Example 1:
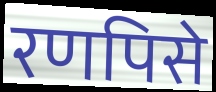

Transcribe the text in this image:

रणपिसे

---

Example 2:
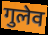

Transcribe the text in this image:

गुलेव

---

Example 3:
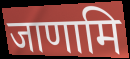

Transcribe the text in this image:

जाणामि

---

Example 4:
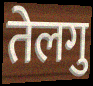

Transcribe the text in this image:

तेलगु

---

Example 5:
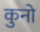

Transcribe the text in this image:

कुनो